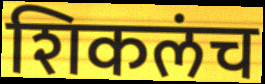
शिकलंच